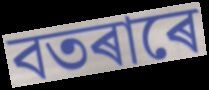
বতৰাৰে